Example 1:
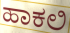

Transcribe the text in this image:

ಹಾಕಲಿ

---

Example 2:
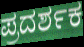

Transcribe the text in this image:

ಪ್ರದರ್ಶಕ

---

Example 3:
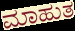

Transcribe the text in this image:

ಮಾಹುತ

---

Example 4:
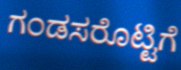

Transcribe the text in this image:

ಗಂಡಸರೊಟ್ಟಿಗೆ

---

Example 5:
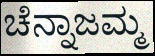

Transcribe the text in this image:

ಚೆನ್ನಾಜಮ್ಮ